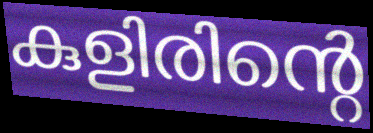
കുളിരിന്റെ